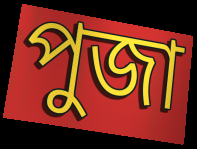
পুজা